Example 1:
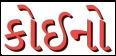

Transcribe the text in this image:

કોઈનો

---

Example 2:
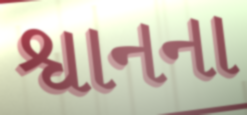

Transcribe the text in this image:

શ્વાનના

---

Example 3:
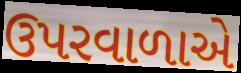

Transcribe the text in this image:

ઉપરવાળાએ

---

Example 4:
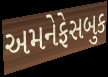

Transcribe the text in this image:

અમનેફેસબુક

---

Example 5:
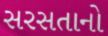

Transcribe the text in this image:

સરસતાનો